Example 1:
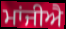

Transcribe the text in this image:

ਮਾਂਜੀਐ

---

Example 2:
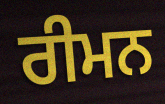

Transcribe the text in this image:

ਰੀਮਨ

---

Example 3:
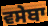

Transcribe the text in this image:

ਵਸੇਬਾ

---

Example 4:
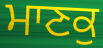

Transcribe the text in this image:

ਮਾਣਕੁ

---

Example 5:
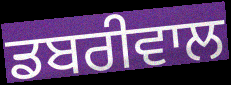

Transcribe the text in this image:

ਡਬਰੀਵਾਲ